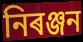
নিৰঞ্জন